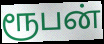
ரூபன்